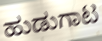
ಹುಡುಗಾಟ